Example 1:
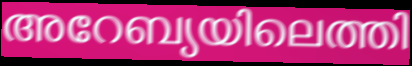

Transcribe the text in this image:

അറേബ്യയിലെത്തി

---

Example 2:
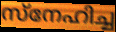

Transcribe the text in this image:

സ്നേഹിച്ച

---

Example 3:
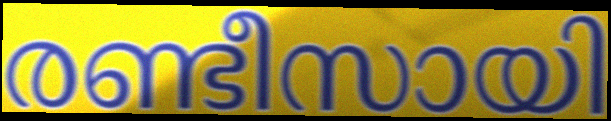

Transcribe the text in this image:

രണ്ടീസായി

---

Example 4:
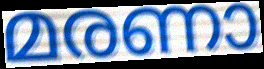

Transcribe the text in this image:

മരണാ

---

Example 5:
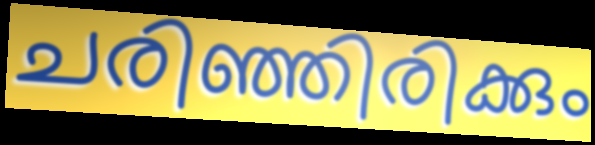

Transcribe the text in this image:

ചരിഞ്ഞിരിക്കും